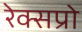
रेक्सप्रो